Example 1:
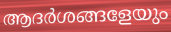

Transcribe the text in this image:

ആദർശങ്ങളേയും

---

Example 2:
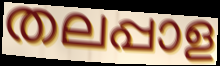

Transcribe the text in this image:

തലപ്പാള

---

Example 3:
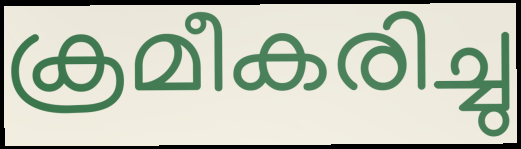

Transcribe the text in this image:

ക്രമീകരിച്ചു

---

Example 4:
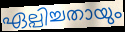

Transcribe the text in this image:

ഏല്പിച്ചതായും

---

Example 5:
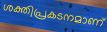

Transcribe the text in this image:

ശക്തിപ്രകടനമാണ്